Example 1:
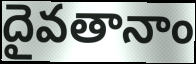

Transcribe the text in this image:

దైవతానాం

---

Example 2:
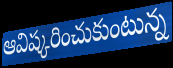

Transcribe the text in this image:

ఆవిష్కరించుకుంటున్న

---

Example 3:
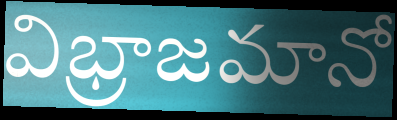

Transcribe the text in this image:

విభ్రాజమానో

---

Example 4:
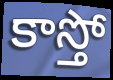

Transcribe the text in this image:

కాస్తో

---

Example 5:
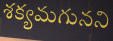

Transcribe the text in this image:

శక్యమగునని